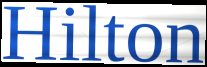
Hilton